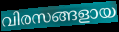
വിരസങ്ങളായ